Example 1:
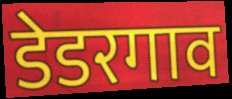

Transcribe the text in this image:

डेडरगाव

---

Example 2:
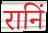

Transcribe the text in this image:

रानिं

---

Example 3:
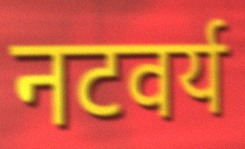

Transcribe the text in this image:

नटवर्य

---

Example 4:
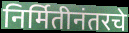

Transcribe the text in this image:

निर्मितीनंतरचे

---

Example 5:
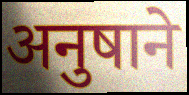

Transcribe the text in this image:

अनुषाने